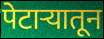
पेटाऱ्यातून